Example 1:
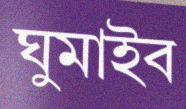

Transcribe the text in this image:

ঘুমাইব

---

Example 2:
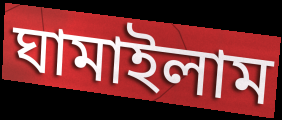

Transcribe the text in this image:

ঘামাইলাম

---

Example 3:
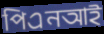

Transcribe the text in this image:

পিএনআই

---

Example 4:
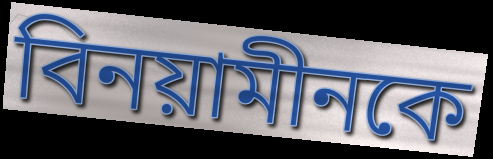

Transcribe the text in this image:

বিনয়ামীনকে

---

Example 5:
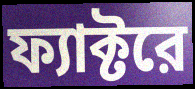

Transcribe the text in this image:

ফ্যাক্টরে